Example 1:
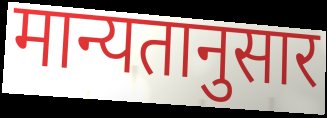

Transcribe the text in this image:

मान्यतानुसार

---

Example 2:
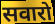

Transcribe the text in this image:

सवारो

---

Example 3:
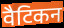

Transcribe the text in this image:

वैटिकन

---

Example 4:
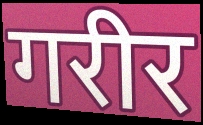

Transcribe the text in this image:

गरीर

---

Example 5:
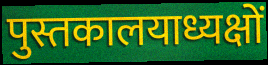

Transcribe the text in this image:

पुस्तकालयाध्यक्षों